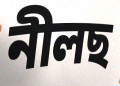
নীলছ